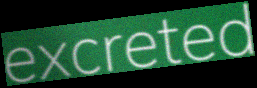
excreted